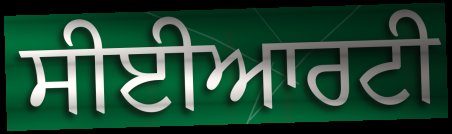
ਸੀਈਆਰਟੀ